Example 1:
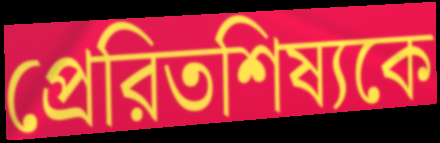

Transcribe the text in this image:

প্রেরিতশিষ্যকে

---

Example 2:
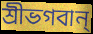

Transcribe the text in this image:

শ্রীভগবান্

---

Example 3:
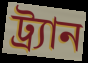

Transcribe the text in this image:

ট্র্যান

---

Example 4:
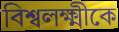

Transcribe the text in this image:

বিশ্বলক্ষ্মীকে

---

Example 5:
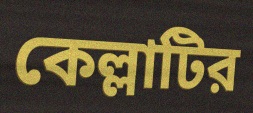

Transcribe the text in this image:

কেল্লাটির